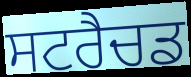
ਸਟਰੈਚਡ